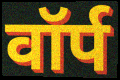
वॉर्प